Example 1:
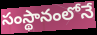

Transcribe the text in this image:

సంస్థానంలోనే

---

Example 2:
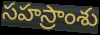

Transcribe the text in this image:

సహస్రాంశు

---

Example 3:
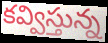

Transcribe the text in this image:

కవ్విస్తున్న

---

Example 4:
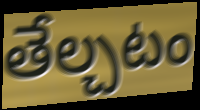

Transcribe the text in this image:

తేల్చటం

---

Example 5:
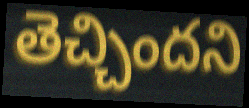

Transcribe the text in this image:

తెచ్చిందని